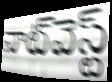
నాట్‌వెస్ట్